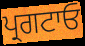
ਪ੍ਰਗਟਾਓ